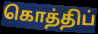
கொத்திப்